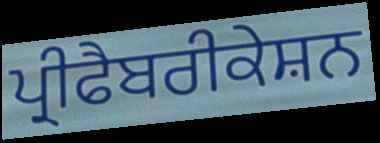
ਪ੍ਰੀਫੈਬਰੀਕੇਸ਼ਨ